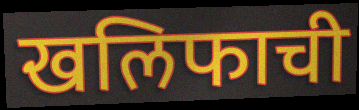
खलिफाची